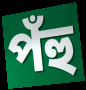
পঁহু